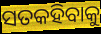
ସତକହିବାକୁ